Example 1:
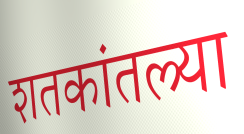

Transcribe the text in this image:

शतकांतल्या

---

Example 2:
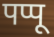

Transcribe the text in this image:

पप्पू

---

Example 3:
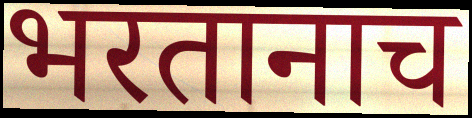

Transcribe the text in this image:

भरतानाच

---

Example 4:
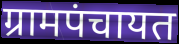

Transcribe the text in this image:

ग्रामपंचायत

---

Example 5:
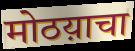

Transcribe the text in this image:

मोठय़ाचा